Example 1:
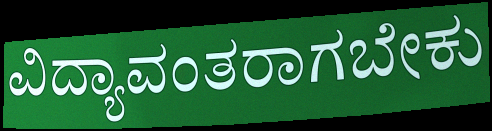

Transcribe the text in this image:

ವಿದ್ಯಾವಂತರಾಗಬೇಕು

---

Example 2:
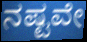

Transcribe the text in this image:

ನಷ್ಟವೇ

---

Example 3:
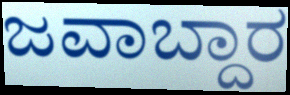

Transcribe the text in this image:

ಜವಾಬ್ದಾರ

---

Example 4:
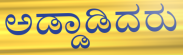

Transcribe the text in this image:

ಅಡ್ಡಾಡಿದರು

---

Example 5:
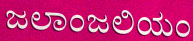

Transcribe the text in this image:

ಜಲಾಂಜಲಿಯಂ